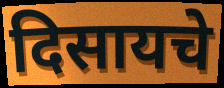
दिसायचे